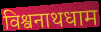
विश्वनाथधाम